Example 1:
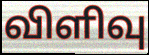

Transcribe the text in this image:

விளிவு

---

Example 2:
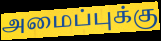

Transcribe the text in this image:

அமைப்புக்கு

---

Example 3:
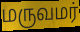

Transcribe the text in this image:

மருவமர்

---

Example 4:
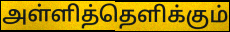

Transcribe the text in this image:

அள்ளித்தெளிக்கும்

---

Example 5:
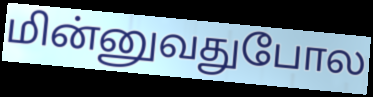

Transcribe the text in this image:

மின்னுவதுபோல